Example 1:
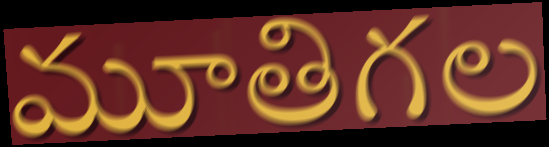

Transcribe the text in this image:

మూతిగల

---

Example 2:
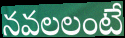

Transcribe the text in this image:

నవలలంటే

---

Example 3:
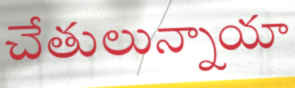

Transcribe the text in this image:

చేతులున్నాయా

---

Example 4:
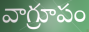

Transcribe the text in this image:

వాగ్రూపం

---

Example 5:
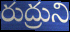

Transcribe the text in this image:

రుద్రుని